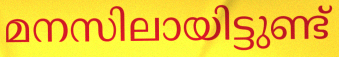
മനസിലായിട്ടുണ്ട്